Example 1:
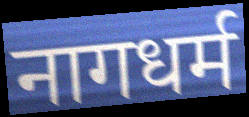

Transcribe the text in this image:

नागधर्म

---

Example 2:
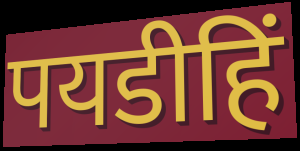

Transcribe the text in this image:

पयडीहिं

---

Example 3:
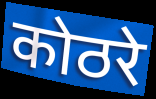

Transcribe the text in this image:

कोठरे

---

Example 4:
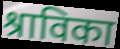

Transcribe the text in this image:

श्राविका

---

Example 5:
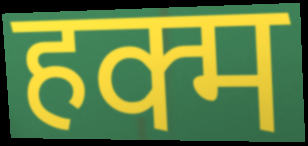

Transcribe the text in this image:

हक्म